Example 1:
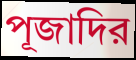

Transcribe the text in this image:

পূজাদির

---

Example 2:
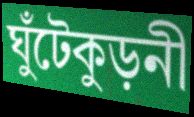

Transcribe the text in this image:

ঘুঁটেকুড়নী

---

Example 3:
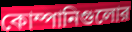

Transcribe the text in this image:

কোম্পানিগুলোর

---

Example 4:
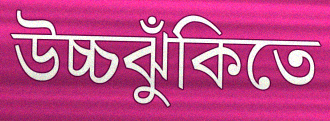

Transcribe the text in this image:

উচ্চঝুঁকিতে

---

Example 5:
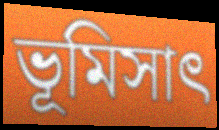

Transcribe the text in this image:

ভূমিসাৎ